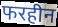
फरहीन